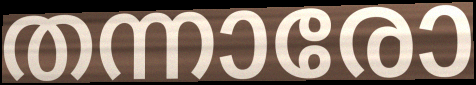
തന്നാരോ